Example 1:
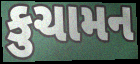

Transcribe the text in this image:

કુચામન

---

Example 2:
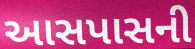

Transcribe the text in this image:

આસપાસની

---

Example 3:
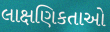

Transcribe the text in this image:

લાક્ષણિકતાઓ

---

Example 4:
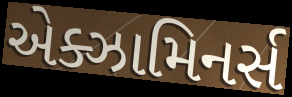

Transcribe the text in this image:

એક્ઝામિનર્સ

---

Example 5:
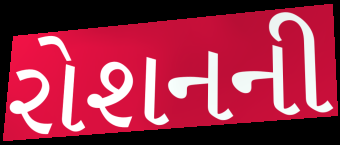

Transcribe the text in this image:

રોશનની